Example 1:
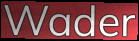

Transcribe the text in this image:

Wader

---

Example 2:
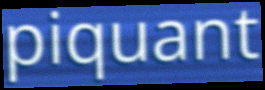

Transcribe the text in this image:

piquant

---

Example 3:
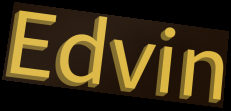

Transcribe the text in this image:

Edvin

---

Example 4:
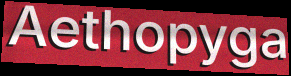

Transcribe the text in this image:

Aethopyga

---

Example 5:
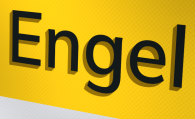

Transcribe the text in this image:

Engel